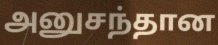
அனுசந்தான